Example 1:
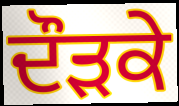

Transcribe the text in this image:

ਦੌੜਕੇ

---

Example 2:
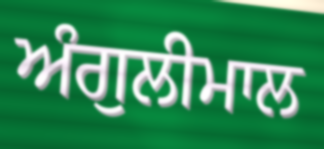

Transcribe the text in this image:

ਅੰਗੁਲੀਮਾਲ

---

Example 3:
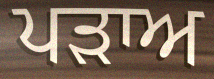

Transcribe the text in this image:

ਪਡ਼ਾਅ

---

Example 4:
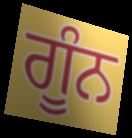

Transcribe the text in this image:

ਗੂੰਨ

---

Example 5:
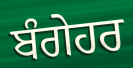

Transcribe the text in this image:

ਬੰਗੇਹਰ